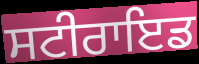
ਸਟੀਰਾਇਡ